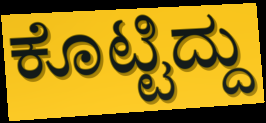
ಕೊಟ್ಟಿದ್ದು